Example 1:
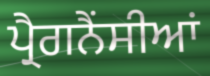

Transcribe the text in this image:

ਪ੍ਰੈਗਨੈਂਸੀਆਂ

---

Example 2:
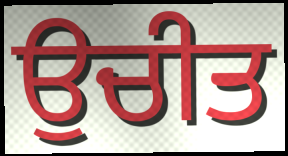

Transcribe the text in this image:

ਉਚੀਤ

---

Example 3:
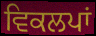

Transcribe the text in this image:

ਵਿਕਲਪਾਂ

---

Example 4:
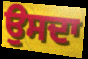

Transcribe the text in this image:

ਉਸਦਾ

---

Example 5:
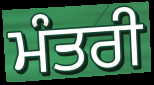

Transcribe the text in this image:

ਮੰਤਰੀ